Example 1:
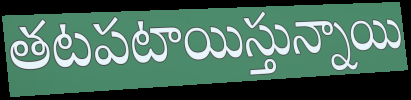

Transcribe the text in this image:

తటపటాయిస్తున్నాయి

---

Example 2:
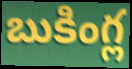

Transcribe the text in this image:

బుకింగ్ల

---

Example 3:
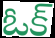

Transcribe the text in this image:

ఓక్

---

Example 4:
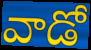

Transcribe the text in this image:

వాడో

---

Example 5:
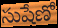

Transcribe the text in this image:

సుషేణో